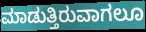
ಮಾಡುತ್ತಿರುವಾಗಲೂ